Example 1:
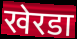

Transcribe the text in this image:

खेरडा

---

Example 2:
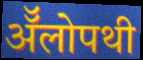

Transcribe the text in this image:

ॲॅलोपथी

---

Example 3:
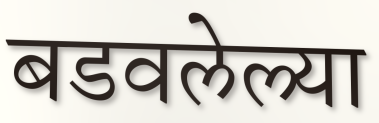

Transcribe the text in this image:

बडवलेल्या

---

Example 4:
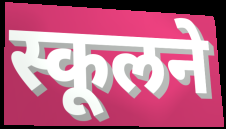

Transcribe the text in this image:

स्कूलने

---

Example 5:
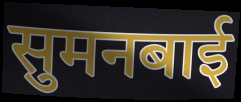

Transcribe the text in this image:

सुमनबाई